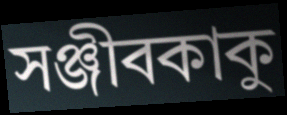
সঞ্জীবকাকু